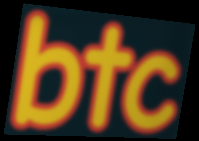
btc